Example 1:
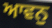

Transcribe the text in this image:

ਆਵਨੁ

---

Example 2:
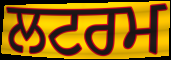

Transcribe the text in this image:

ਲਟਰਮ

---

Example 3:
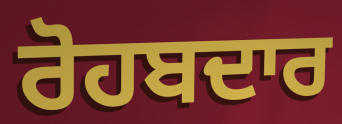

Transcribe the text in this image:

ਰੋਹਬਦਾਰ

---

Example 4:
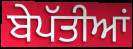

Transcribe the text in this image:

ਬੇਪੱਤੀਆਂ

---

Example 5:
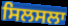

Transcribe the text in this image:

ਸਿਲਸਲਾ